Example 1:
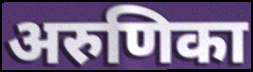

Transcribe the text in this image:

अरुणिका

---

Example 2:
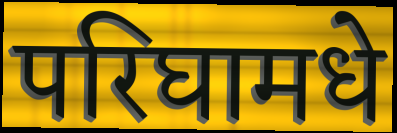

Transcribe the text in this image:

परिघामधे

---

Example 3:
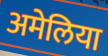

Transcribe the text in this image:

अमेलिया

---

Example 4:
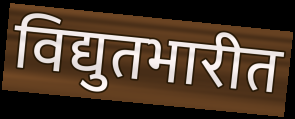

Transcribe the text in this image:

विद्युतभारीत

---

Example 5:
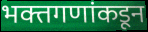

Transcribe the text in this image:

भक्तगणांकडून